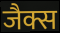
जैक्स